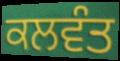
ਕਲਵੰਤ